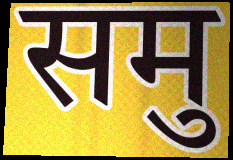
समु